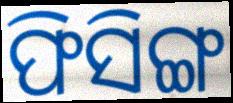
ଫିସିଙ୍ଗ